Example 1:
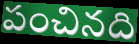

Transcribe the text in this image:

పంచినది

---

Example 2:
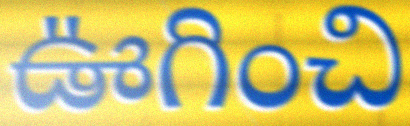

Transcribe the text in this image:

ఊగించి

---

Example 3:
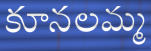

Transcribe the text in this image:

కూనలమ్మ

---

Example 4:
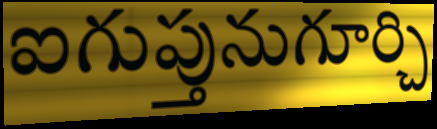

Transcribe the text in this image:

ఐగుప్తునుగూర్చి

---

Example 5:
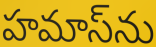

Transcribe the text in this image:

హమాస్‌ను